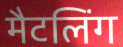
मैटलिंग